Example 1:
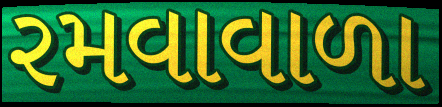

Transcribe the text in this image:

રમવાવાળા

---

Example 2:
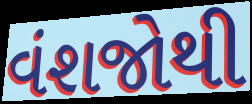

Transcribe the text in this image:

વંશજોથી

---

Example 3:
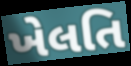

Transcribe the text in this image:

ખેલતિ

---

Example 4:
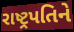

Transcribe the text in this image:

રાષ્ટ્રપતિને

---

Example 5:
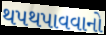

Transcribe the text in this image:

થપથપાવવાનો